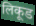
लिकूड